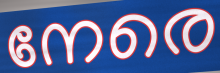
നേരെ